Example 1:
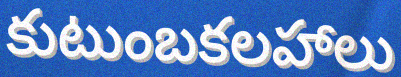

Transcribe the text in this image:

కుటుంబకలహాలు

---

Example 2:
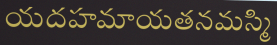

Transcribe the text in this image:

యదహమాయతనమస్మి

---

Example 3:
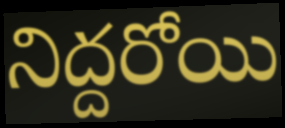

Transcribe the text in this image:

నిద్దరోయి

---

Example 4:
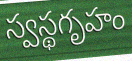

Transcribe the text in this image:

స్వస్థగృహం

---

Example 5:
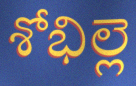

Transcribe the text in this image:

శోభిల్లె